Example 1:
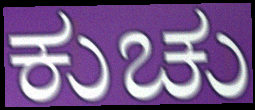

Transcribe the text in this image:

ಕುಚು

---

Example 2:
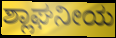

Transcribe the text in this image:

ಶ್ಲಾಘನೀಯ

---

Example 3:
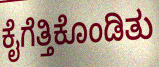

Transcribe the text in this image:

ಕೈಗೆತ್ತಿಕೊಂಡಿತು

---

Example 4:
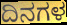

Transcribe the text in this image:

ದಿನಗಳ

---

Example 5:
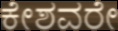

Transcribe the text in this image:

ಕೇಶವರೇ